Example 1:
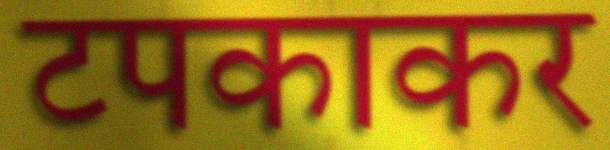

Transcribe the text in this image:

टपकाकर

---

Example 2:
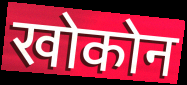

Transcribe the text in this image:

खोकोन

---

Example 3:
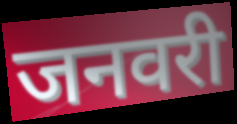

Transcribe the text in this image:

जनवरी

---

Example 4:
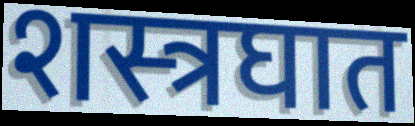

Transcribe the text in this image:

शस्त्रघात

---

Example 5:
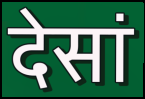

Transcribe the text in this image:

देसां